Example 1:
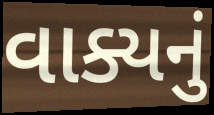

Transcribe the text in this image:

વાક્યનું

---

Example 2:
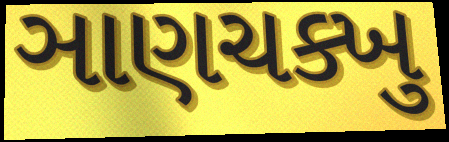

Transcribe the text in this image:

ઞાણચક્ખુ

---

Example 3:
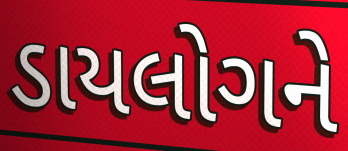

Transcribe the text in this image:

ડાયલોગને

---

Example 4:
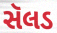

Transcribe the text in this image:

સૅલડ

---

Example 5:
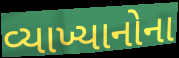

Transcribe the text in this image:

વ્યાખ્યાનોના